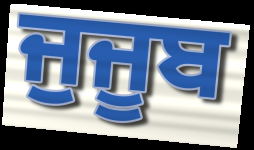
ਜੁਜੂਬ